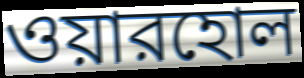
ওয়ারহোল